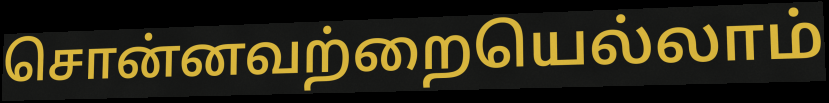
சொன்னவற்றையெல்லாம்